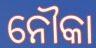
ନୌକା